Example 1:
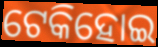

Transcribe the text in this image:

ଟେକିହୋଇ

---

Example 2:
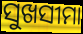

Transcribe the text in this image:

ସୁଖସୀମା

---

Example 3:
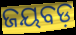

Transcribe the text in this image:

ଜୟବଡ଼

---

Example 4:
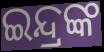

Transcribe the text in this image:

ଇନ୍ଦ୍ରଙ୍କ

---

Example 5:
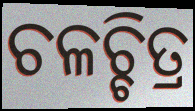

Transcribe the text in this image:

ଚଳଚ୍ଚିତ୍ର